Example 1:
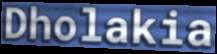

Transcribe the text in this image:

Dholakia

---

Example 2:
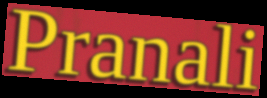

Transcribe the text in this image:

Pranali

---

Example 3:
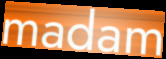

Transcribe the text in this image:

madam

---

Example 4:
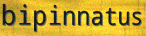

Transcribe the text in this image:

bipinnatus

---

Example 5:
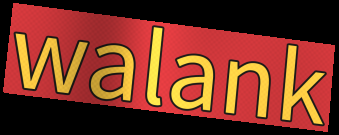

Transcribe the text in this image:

walank